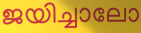
ജയിച്ചാലോ